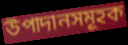
উপাদানসমূহক